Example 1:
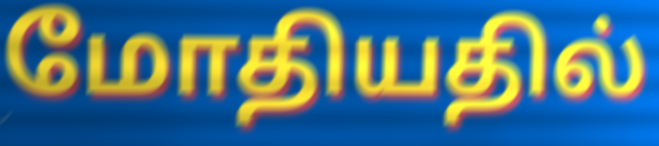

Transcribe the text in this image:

மோதியதில்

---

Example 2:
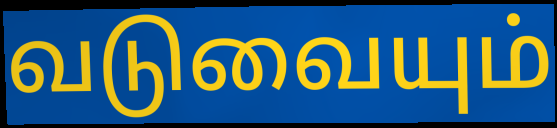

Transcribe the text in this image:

வடுவையும்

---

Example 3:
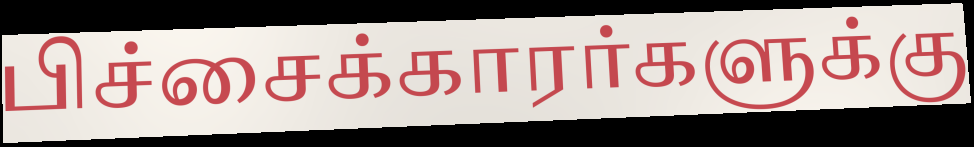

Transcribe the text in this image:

பிச்சைக்காரர்களுக்கு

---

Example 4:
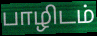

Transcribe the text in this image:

பாழிடம்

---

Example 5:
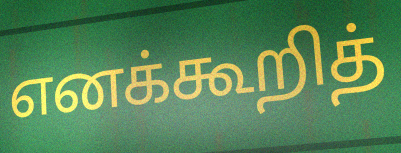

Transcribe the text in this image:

எனக்கூறித்